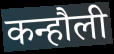
कन्हौली